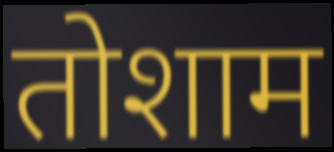
तोशाम